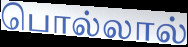
பொல்லால்